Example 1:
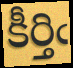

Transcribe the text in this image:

కీర్తిఁ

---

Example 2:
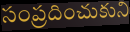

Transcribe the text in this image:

సంప్రదించుకుని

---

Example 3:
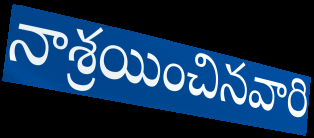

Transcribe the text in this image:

నాశ్రయించినవారి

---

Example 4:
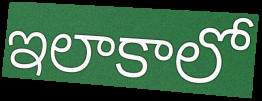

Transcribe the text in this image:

ఇలాకాలో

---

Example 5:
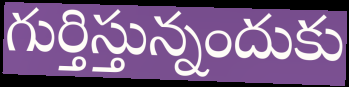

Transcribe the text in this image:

గుర్తిస్తున్నందుకు